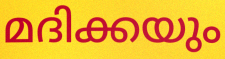
മദിക്കയും